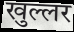
खुल्लर